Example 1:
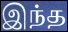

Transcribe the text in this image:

இந்த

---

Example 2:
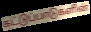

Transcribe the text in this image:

கட்டுப்பாடுகளின்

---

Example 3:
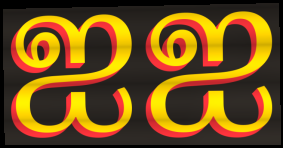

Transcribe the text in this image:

ஐஐ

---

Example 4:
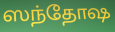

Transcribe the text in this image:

ஸந்தோஷ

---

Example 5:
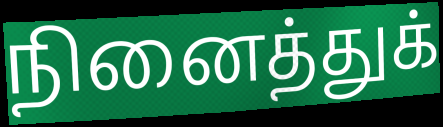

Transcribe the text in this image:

நினைத்துக்